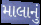
માલાનું